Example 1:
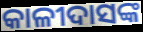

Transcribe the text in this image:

କାଳୀଦାସଙ୍କ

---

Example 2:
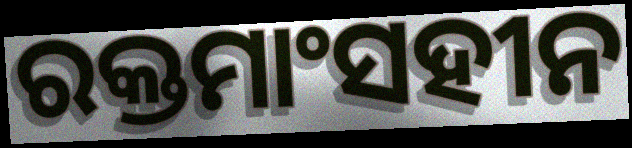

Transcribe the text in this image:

ରକ୍ତମାଂସହୀନ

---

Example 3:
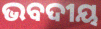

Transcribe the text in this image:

ଭବଦୀୟ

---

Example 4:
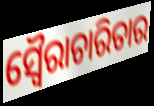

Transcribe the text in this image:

ସ୍ୱୈରାଚାରିତାର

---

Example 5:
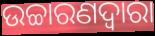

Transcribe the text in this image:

ଉଚ୍ଚାରଣଦ୍ଵାରା